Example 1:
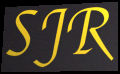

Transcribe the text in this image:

SJR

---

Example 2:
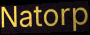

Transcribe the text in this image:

Natorp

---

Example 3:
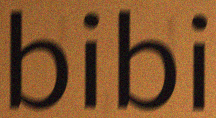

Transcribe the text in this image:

bibi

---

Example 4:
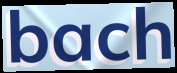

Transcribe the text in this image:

bach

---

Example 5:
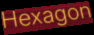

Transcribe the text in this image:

Hexagon